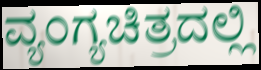
ವ್ಯಂಗ್ಯಚಿತ್ರದಲ್ಲಿ